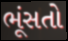
ભૂંસતો